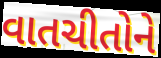
વાતચીતોને